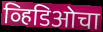
व्हिडिओचा